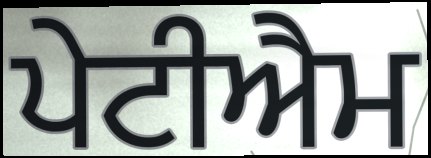
ਪੇਟੀਐਮ